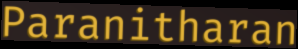
Paranitharan